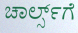
ಚಾರ್ಲ್ಸ್‌ಗೆ